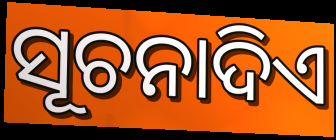
ସୂଚନାଦିଏ